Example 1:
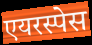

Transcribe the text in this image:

एयरस्पेस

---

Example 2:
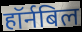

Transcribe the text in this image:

हॉर्नबिल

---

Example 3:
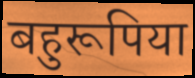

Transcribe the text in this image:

बहुरूपिया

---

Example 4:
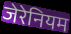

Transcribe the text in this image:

जेरेनियम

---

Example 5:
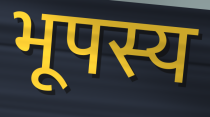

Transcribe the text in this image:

भूपस्य